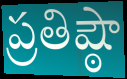
ప్రతిష్ఠౌ